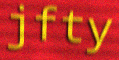
jfty